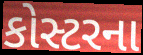
કોસ્ટરના